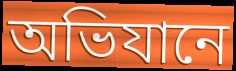
অভিযানে